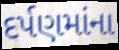
દર્પણમાંના